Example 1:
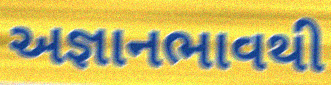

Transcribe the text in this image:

અજ્ઞાનભાવથી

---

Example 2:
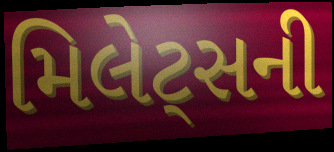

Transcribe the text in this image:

મિલેટ્સની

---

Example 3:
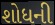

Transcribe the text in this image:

શોધની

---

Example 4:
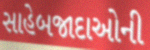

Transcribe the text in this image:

સાહેબજાદાઓની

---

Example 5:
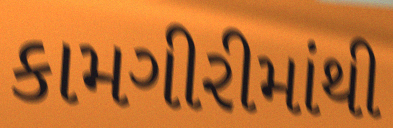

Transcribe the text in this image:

કામગીરીમાંથી